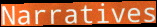
Narratives